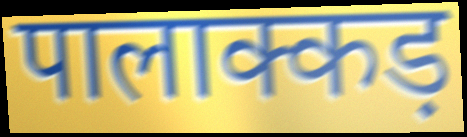
पालाक्कड़